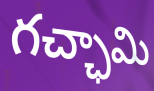
గచ్ఛామి